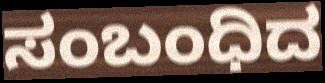
ಸಂಬಂಧಿದ